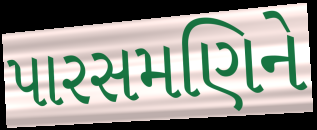
પારસમણિને